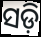
ସଡ଼ି